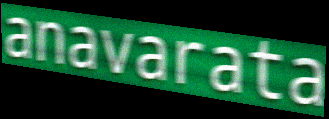
anavarata